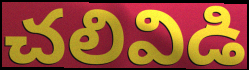
చలివిడి